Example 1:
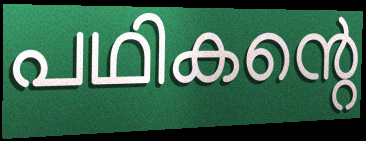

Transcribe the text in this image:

പഥികന്റെ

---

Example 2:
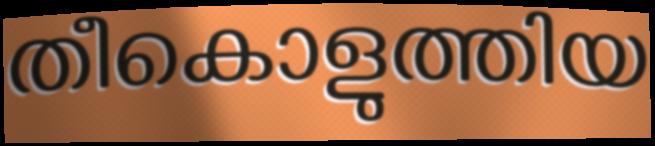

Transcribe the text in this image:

തീകൊളുത്തിയ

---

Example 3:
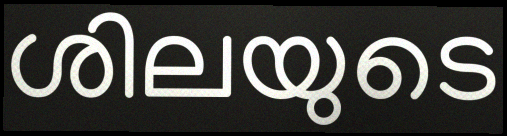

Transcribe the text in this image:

ശിലയുടെ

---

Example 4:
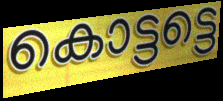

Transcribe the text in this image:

കൊട്ടട്ടെ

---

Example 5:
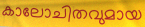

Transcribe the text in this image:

കാലോചിതവുമായ